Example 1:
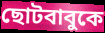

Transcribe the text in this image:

ছোটবাবুকে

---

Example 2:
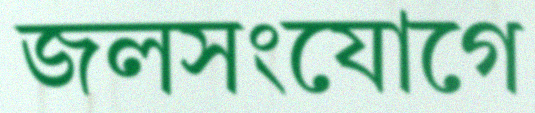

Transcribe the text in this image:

জলসংযোগে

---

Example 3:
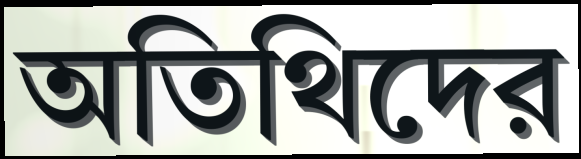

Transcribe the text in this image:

অতিথিদের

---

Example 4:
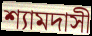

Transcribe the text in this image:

শ্যামদাসী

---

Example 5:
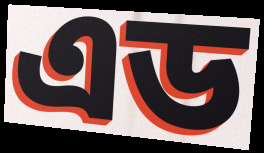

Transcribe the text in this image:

এড